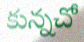
కున్నచో